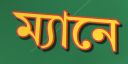
ম্যানে